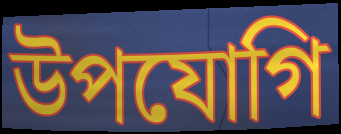
উপযোগি